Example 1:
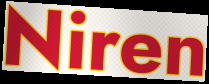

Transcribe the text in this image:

Niren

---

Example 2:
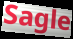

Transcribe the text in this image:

Sagle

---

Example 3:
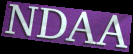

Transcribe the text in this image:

NDAA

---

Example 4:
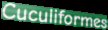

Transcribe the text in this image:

Cuculiformes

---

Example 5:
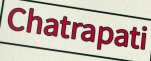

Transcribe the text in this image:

Chatrapati